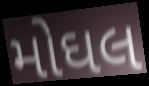
મોઘલ